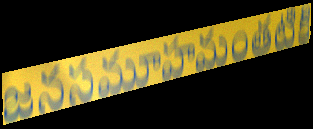
జనసమూహమంతటికి